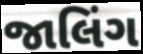
જાલિંગ